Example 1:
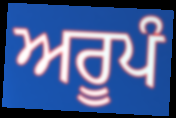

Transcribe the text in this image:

ਅਰੂਪੰ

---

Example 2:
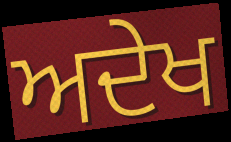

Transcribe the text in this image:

ਅਦੇਖ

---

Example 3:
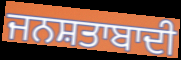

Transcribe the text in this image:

ਜਨਸ਼ਤਾਬਾਦੀ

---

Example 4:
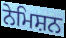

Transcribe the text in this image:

ਨੇਮਿਸ਼ਨ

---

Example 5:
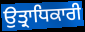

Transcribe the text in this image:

ਉਤ੍ਰਾਧਿਕਾਰੀ